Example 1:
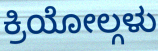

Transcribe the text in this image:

ಕ್ರಿಯೋಲ್ಗಳು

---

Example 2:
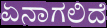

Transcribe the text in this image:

ಏನಾಗಲಿದೆ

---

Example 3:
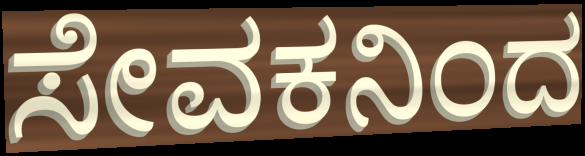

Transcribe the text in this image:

ಸೇವಕನಿಂದ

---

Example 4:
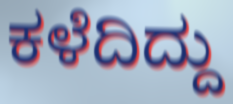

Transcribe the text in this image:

ಕಳೆದಿದ್ದು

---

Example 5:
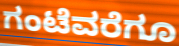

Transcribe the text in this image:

ಗಂಟೆವರೆಗೂ